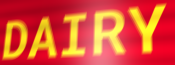
DAIRY